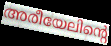
അരീയേലിന്റെ